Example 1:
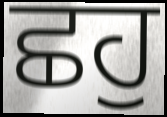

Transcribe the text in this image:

ਛਹੁ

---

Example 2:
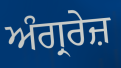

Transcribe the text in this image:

ਅੰਗ੍ਰਰੇਜ਼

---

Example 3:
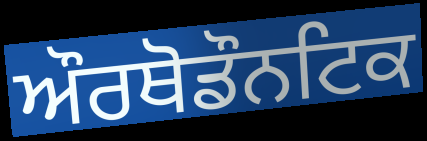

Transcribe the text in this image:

ਔਰਥੋਡੌਨਟਿਕ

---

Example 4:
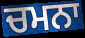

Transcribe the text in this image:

ਚਮਨਾ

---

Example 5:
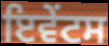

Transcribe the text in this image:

ਇਵੇੰਟਸ